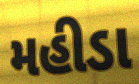
મહીડા